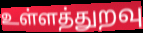
உள்ளத்துறவு